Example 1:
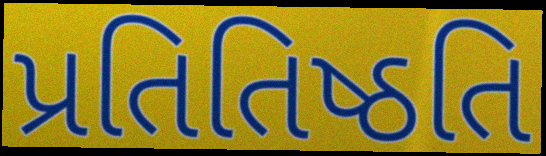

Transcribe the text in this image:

પ્રતિતિષ્ઠતિ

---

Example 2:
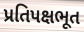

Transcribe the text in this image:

પ્રતિપક્ષભૂત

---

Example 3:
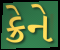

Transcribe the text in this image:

ક્રેને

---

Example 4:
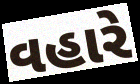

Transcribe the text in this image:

વહારે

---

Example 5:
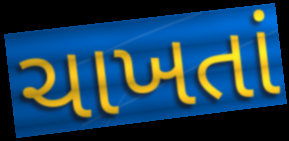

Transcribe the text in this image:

ચાખતાં